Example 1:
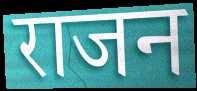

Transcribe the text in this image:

राजन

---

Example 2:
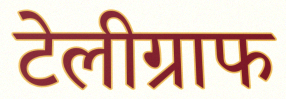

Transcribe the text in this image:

टेलीग्राफ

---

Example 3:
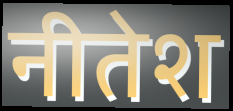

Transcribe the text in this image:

नीतेश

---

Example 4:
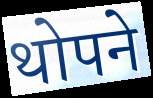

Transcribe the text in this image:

थोपने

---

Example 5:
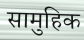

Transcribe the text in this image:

सामुहिक